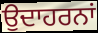
ਉਦਾਹਰਨਾਂ